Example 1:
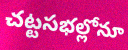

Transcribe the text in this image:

చట్టసభల్లోనూ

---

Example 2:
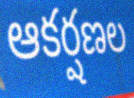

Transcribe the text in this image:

ఆకర్షణల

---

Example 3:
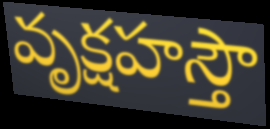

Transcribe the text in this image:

వృక్షహస్తౌ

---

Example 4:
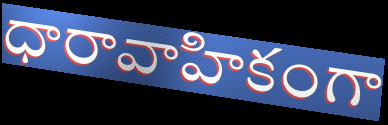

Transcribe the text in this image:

ధారావాహికంగా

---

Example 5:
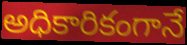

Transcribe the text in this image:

అధికారికంగానే